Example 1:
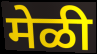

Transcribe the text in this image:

मेळी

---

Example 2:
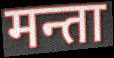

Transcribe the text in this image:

मन्ता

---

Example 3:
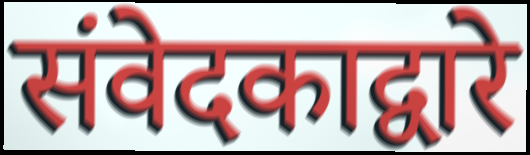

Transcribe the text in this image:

संवेदकाद्वारे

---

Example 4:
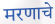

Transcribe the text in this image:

मरणाचे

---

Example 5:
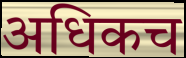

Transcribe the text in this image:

अधिकच